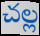
చల్ల